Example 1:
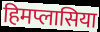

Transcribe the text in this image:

हिमप्लासिया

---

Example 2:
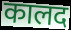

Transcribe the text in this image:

कालद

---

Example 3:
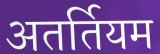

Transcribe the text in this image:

अतर्तियम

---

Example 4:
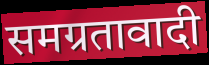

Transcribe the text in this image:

समग्रतावादी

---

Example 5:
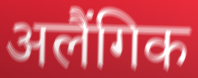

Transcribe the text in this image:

अलैंगिक